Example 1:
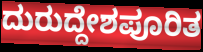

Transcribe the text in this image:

ದುರುದ್ದೇಶಪೂರಿತ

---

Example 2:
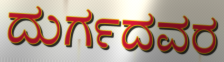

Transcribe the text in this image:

ದುರ್ಗದವರ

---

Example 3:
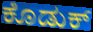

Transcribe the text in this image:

ಕೊಡುಕ್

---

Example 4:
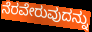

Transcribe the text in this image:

ನೆರವೇರುವುದನ್ನು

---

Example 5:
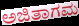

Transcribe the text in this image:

ಅಜಿತಾಗಮ